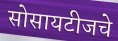
सोसायटीजचे